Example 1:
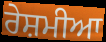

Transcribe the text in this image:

ਰੇਸ਼ਮੀਆ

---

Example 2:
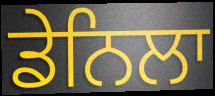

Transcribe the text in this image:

ਡੇਨਿਲਾ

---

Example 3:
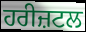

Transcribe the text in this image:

ਹਰੀਜ਼ਟਲ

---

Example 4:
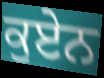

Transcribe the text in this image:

ਕੁਏਨ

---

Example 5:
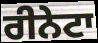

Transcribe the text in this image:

ਰੀਨੇਟਾ